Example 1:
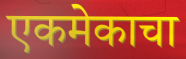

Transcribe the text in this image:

एकमेकाचा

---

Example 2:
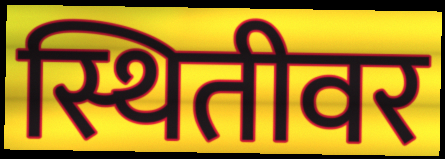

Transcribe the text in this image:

स्थितीवर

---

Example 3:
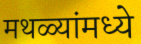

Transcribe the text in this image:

मथळ्यांमध्ये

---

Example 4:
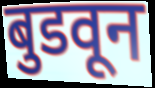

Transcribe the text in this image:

बुडवून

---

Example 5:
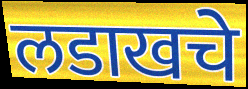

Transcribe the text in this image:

लडाखचे